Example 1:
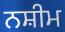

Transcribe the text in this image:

ਨਸ਼ੀਮ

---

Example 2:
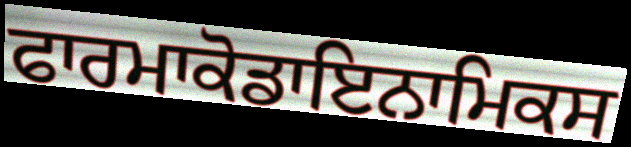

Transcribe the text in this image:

ਫਾਰਮਾਕੋਡਾਇਨਾਮਿਕਸ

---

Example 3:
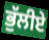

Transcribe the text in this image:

ਭੁੱਲੀਏ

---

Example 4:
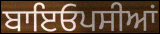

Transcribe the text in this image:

ਬਾਇਓਪਸੀਆਂ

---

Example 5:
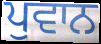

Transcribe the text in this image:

ਪੁਵਾਨ